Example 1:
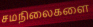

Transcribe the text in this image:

சமநிலைகளை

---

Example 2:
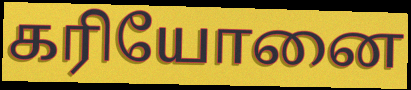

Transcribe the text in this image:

கரியோனை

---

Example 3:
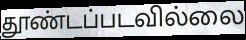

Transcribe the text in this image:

தூண்டப்படவில்லை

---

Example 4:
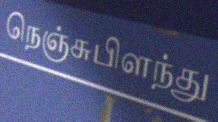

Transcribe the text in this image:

நெஞ்சுபிளந்து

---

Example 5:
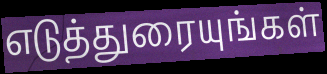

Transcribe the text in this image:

எடுத்துரையுங்கள்